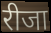
रीजा